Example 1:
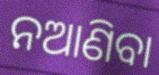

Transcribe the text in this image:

ନଆଣିବା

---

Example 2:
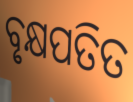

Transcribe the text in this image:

ବୃକ୍ଷପତିତ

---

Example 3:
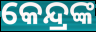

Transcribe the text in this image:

କେନ୍ଦ୍ରଙ୍କ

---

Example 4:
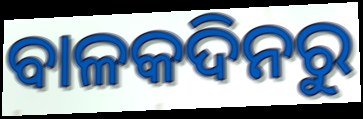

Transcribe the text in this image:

ବାଳକଦିନରୁ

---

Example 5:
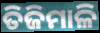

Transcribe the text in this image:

ତିଜିମାଳି